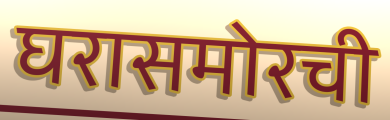
घरासमोरची